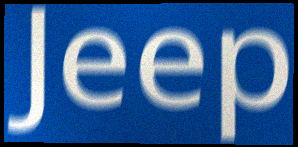
Jeep